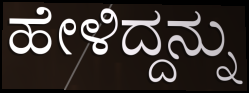
ಹೇಳಿದ್ದನ್ನು